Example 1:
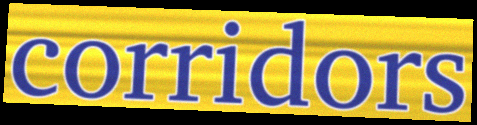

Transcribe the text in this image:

corridors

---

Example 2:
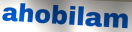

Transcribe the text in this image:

ahobilam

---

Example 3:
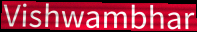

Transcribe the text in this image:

Vishwambhar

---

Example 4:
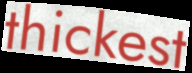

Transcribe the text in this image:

thickest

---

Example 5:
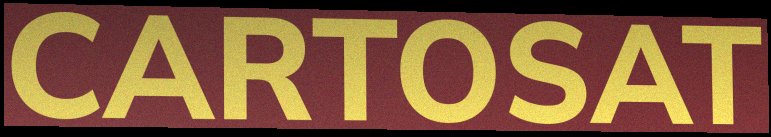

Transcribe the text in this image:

CARTOSAT